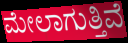
ಮೇಲಾಗುತ್ತಿವೆ